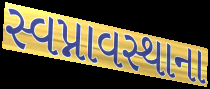
સ્વપ્નાવસ્થાના